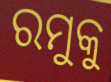
ରମୁକୁ